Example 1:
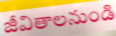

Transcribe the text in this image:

జీవితాలనుండి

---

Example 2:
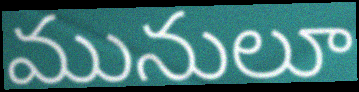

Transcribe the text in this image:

మునులూ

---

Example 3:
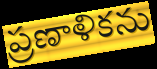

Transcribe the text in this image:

ప్రణాళికను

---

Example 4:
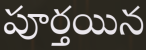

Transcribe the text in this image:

పూర్తయిన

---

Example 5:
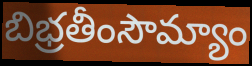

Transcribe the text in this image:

బిభ్రతీంసౌమ్యాం